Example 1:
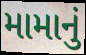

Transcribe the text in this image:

મામાનું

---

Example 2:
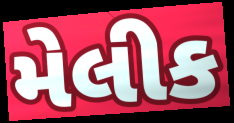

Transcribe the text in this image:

મેલીક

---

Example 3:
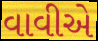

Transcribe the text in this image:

વાવીએ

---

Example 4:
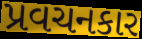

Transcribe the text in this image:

પ્રવચનકાર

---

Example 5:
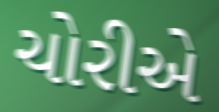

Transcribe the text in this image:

ચોરીએ